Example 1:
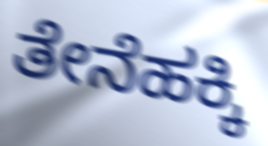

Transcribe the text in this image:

ತೇನೆಹಕ್ಕಿ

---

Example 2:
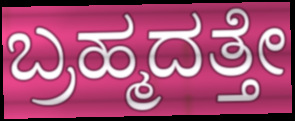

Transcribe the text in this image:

ಬ್ರಹ್ಮದತ್ತೇ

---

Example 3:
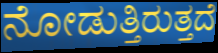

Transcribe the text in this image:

ನೋಡುತ್ತಿರುತ್ತದೆ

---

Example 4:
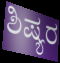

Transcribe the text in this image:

ಶಿಷ್ಯರ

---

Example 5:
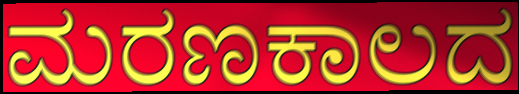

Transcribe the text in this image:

ಮರಣಕಾಲದ